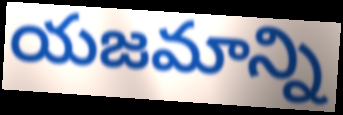
యజమాన్ని